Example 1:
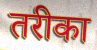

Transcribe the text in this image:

तरीका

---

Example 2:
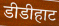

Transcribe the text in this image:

डीडीहाट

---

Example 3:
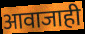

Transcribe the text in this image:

आवाजाही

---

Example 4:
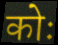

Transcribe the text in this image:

कोः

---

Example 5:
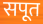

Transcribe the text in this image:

सपूत